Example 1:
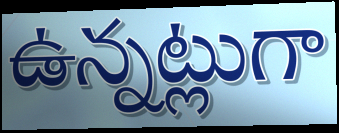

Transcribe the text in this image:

ఉన్నట్లుగా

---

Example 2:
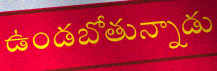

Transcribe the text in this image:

ఉండబోతున్నాడు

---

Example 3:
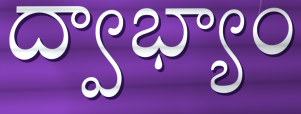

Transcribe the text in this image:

ద్వాభ్యాం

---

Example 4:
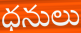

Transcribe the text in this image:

ధనులు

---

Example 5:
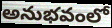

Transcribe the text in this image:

అనుభవంలో